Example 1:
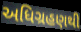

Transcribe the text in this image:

અધિગ્રહણથી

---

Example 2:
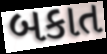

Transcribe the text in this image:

બકાત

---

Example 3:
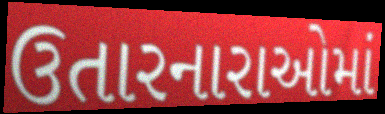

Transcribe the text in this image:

ઉતારનારાઓમાં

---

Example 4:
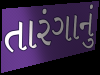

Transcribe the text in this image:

તારંગાનું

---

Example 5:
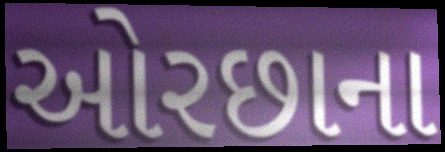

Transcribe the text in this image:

ઓરછાના